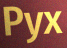
Pyx